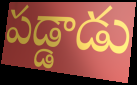
పడ్డాడు